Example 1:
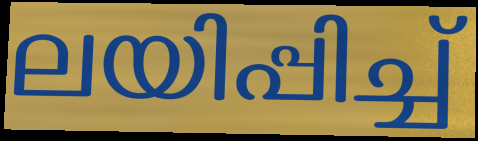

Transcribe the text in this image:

ലയിപ്പിച്ച്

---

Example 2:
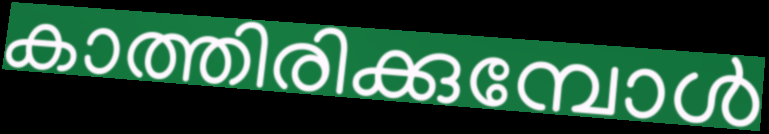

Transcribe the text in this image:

കാത്തിരിക്കുമ്പോൾ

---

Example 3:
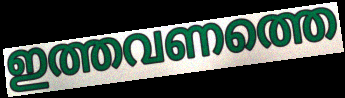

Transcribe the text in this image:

ഇത്തവണത്തെ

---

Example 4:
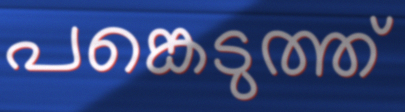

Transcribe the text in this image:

പങ്കെടുത്ത്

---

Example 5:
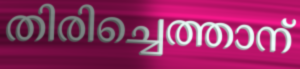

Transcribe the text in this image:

തിരിച്ചെത്താന്